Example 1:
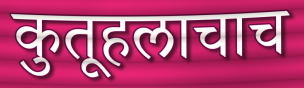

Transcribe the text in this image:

कुतूहलाचाच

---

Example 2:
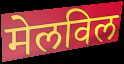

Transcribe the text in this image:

मेलविल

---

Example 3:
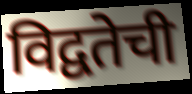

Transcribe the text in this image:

विद्वतेची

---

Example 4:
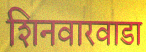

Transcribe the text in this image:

शिनवारवाडा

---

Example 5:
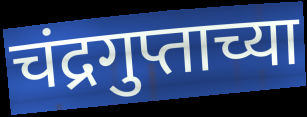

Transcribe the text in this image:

चंद्रगुप्ताच्या